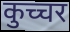
कुच्चर